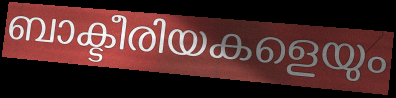
ബാക്ടീരിയകളെയും